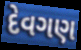
દેવગણ